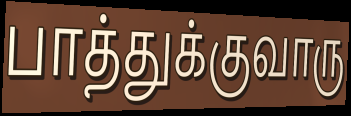
பாத்துக்குவாரு